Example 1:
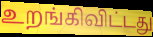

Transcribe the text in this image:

உறங்கிவிட்டது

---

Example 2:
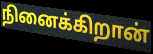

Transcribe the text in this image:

நினைக்கிறான்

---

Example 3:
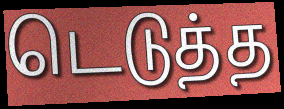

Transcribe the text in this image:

டெடுத்த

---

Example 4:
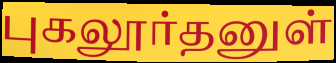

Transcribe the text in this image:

புகலூர்தனுள்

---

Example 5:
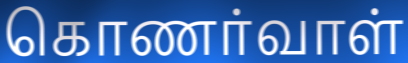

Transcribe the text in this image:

கொணர்வாள்